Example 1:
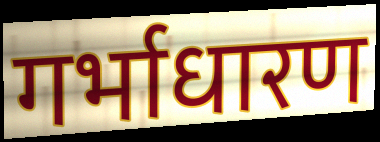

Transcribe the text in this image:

गर्भाधारण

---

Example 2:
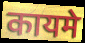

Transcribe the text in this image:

कायमे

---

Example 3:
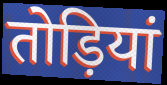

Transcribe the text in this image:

तोड़ियां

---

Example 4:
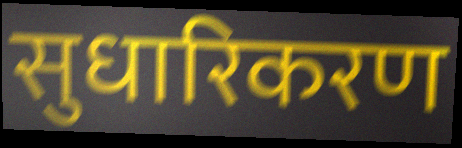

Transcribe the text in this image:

सुधारिकरण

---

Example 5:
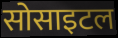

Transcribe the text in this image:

सोसाइटल